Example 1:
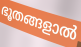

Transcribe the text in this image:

ഭൂതങ്ങളാൽ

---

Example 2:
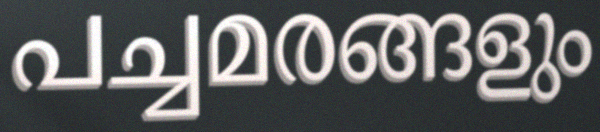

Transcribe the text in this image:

പച്ചമരങ്ങളും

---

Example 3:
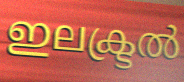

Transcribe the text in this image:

ഇലക്ട്രൽ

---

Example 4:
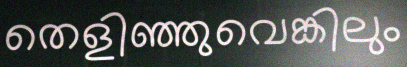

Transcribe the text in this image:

തെളിഞ്ഞുവെങ്കിലും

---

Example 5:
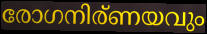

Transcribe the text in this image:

രോഗനിര്ണയവും